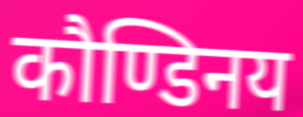
कौण्डिनय